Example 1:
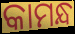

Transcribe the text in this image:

କାମନ୍ଧ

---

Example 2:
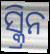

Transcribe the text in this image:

ସ୍କ୍ରିନ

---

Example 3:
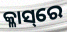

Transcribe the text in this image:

କ୍ଳାସ୍‌ରେ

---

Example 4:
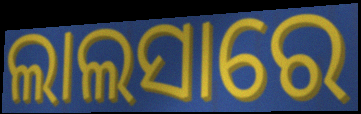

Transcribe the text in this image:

ଲାଲସାରେ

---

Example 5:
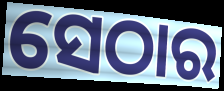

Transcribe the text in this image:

ସେଠାର